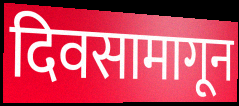
दिवसामागून